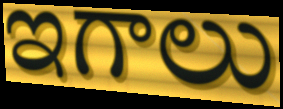
ఇగాలు